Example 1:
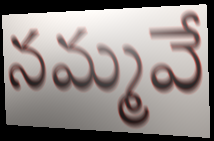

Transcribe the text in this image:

నమ్మవే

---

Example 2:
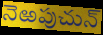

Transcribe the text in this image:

నెఱపుచున్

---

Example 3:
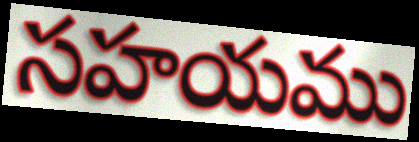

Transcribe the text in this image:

సహయము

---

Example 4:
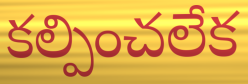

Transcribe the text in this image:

కల్పించలేక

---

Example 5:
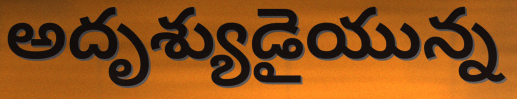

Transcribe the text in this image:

అదృశ్యుడైయున్న